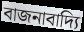
বাজনাবাদ্যি